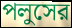
পলুসের